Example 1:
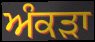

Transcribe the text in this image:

ਅੰਕੜਾ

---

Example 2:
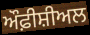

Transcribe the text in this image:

ਔਫ਼ੀਸ਼ੀਅਲ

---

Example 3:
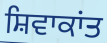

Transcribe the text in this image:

ਸ਼ਿਵਾਕਾਂਤ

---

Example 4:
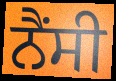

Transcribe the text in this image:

ਨੈਂਸੀ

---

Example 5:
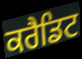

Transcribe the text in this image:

ਕਰੈਡਿਟ